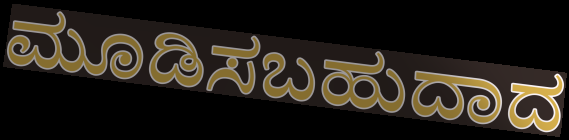
ಮೂಡಿಸಬಹುದಾದ